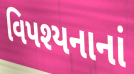
વિપશ્યનાનાં